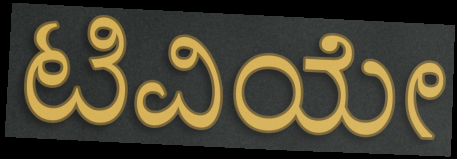
ಟಿವಿಯೇ